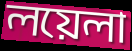
লয়েলা